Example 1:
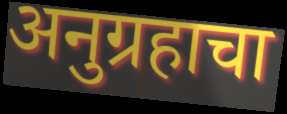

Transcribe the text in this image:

अनुग्रहाचा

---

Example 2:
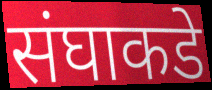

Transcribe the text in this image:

संघाकडे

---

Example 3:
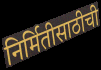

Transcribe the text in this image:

निर्मितीसाठीची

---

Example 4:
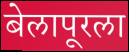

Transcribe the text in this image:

बेलापूरला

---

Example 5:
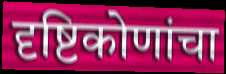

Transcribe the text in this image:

दृष्टिकोणांचा